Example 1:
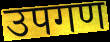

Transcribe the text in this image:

उपगण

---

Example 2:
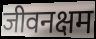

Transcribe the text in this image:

जीवनक्षम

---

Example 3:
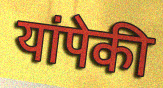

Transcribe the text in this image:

यांपेकी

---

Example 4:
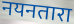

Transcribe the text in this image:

नयनतारा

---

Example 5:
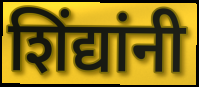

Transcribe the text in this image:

शिंद्यांनी